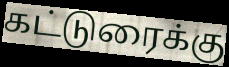
கட்டுரைக்கு